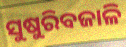
ସୁଷୁରିବଜାଳି